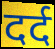
दर्द